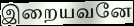
இறையவனே